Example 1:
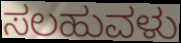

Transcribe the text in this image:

ಸಲಹುವಳು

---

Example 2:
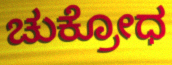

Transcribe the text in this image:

ಚುಕ್ರೋಧ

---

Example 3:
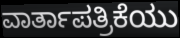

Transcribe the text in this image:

ವಾರ್ತಾಪತ್ರಿಕೆಯು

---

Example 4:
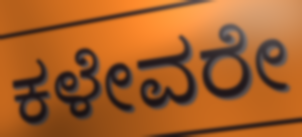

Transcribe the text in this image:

ಕಳೇವರೇ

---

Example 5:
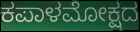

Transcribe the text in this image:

ಕಪಾಳಮೋಕ್ಷದ